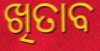
ଖିତାବ